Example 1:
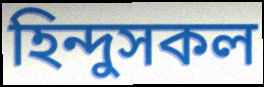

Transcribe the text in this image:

হিন্দুসকল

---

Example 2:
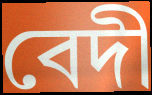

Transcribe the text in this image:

বেদী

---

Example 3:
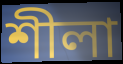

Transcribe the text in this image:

শীলা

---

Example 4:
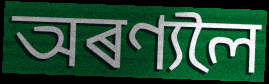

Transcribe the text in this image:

অৰণ্যলৈ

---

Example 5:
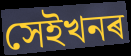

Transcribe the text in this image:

সেইখনৰ